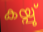
കയ്പു്